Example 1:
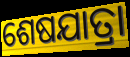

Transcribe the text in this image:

ଶେଷଯାତ୍ରା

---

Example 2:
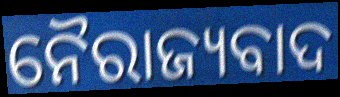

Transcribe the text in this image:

ନୈରାଜ୍ୟବାଦ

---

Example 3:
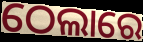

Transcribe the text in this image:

ଠେଲାରେ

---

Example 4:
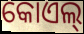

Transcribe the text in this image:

କୋଏଲ୍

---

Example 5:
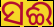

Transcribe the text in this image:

ସଈ